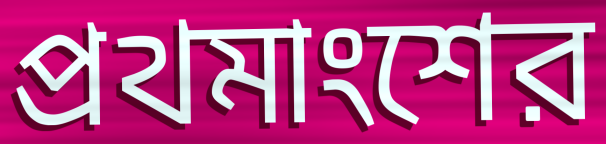
প্রথমাংশের